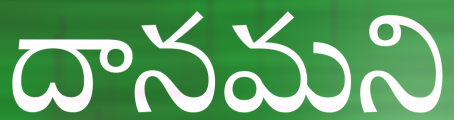
దానమని